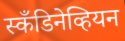
स्कँडिनेव्हियन